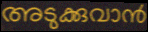
അടുക്കുവാൻ